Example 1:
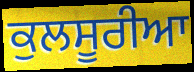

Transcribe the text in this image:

ਕੁਲਸੂਰੀਆ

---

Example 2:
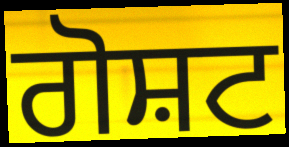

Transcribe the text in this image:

ਗੋਸ਼ਟ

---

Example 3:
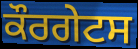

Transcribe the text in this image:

ਕੌਰਗੇਟਸ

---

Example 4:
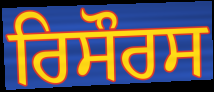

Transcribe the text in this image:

ਰਿਸੌਰਸ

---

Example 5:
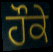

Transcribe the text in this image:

ਹੌਕੇ